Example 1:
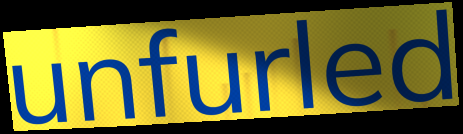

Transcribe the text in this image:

unfurled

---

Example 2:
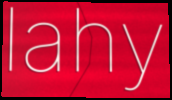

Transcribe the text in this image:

lahy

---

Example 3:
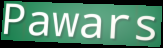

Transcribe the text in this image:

Pawars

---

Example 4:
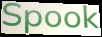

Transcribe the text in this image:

Spook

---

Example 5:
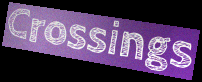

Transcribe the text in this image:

Crossings